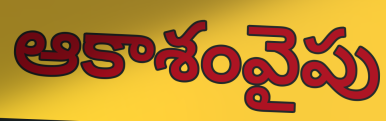
ఆకాశంవైపు